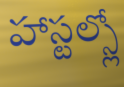
హాస్టల్స్లో